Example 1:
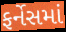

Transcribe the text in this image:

ફર્નેસમાં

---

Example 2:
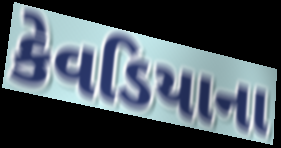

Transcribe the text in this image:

કેવડિયાના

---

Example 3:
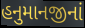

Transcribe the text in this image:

હનુમાનજીનાં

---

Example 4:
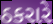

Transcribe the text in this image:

ઠકરારે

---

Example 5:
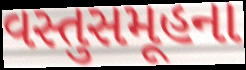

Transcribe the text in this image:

વસ્તુસમૂહના